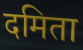
दमिता